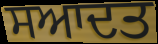
ਸਆਦਤ